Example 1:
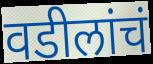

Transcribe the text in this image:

वडीलांचं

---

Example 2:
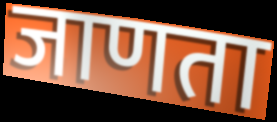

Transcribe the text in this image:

जाणता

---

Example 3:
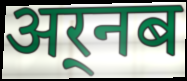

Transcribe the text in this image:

अर्नब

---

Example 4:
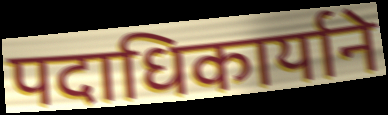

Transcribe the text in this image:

पदाधिकार्याने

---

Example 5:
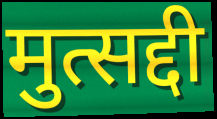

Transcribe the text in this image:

मुत्सद्दी